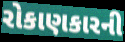
રોકાણકારની